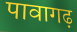
पावागढ़